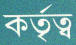
কর্তৃত্ব